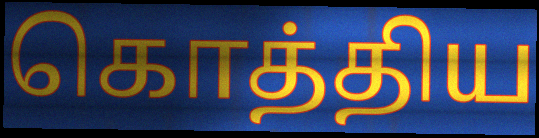
கொத்திய